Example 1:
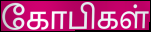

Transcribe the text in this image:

கோபிகள்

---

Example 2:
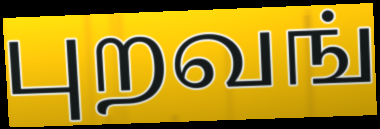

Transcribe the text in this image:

புறவங்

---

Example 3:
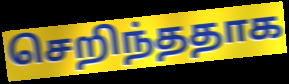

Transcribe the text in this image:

செறிந்ததாக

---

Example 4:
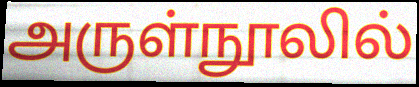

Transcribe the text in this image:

அருள்நூலில்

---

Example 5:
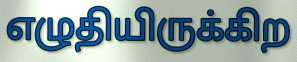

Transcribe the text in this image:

எழுதியிருக்கிற